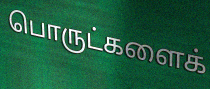
பொருட்களைக்